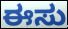
ಈಸು